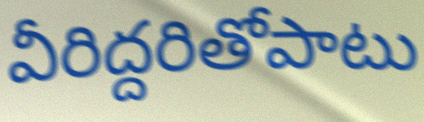
వీరిద్దరితోపాటు